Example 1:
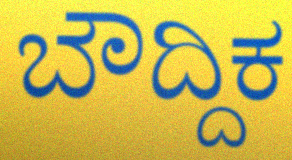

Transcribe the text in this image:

ಬೌದ್ದಿಕ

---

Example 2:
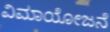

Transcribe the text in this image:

ವಿಮಾಯೋಜನೆ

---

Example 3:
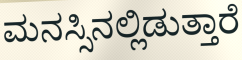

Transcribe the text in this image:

ಮನಸ್ಸಿನಲ್ಲಿಡುತ್ತಾರೆ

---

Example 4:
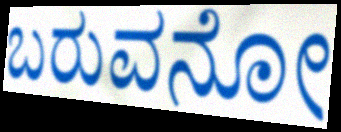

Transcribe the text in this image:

ಬರುವನೋ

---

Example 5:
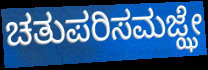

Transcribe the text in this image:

ಚತುಪರಿಸಮಜ್ಝೇ